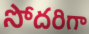
సోదరిగా